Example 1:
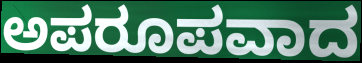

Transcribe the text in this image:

ಅಪರೂಪವಾದ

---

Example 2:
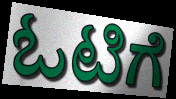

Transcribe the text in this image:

ಓಟಿಗೆ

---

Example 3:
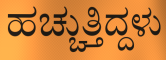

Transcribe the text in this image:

ಹಚ್ಚುತ್ತಿದ್ದಳು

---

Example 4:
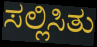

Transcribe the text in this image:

ಸಲ್ಲಿಸಿತು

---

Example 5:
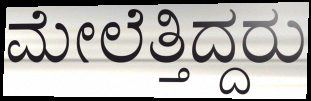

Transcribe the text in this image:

ಮೇಲೆತ್ತಿದ್ದರು